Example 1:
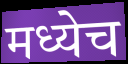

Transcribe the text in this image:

मध्‍येच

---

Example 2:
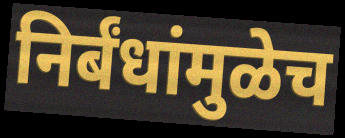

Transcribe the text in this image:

निर्बंधांमुळेच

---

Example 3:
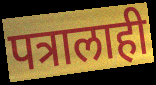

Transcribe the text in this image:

पत्रालाही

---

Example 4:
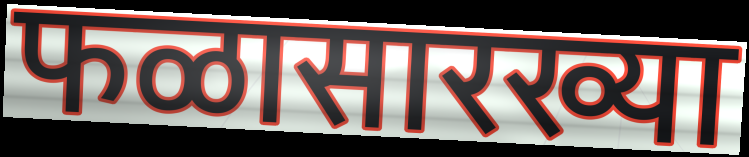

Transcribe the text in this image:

फळासारख्या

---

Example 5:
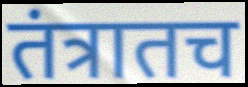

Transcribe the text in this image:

तंत्रातच